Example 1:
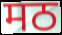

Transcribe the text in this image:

मठ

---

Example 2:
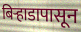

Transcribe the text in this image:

बिऱ्हाडापासून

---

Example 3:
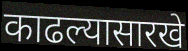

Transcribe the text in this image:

काढल्यासारखे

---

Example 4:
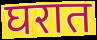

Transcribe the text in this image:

घरात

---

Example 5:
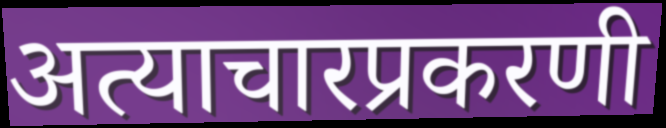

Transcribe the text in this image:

अत्याचारप्रकरणी